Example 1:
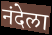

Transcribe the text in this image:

नंदेला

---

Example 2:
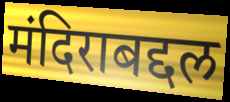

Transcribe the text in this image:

मंदिराबद्दल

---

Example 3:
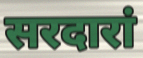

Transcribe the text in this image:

सरदारां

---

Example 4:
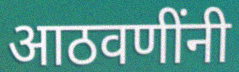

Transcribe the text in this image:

आठवणींनी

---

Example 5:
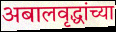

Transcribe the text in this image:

अबालवृद्धांच्या